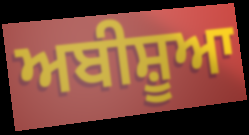
ਅਬੀਸ਼ੂਆ